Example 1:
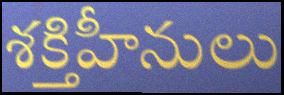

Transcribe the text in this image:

శక్తిహీనులు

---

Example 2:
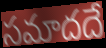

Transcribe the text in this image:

సమాదదే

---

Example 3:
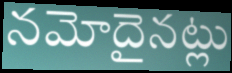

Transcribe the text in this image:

నమోదైనట్లు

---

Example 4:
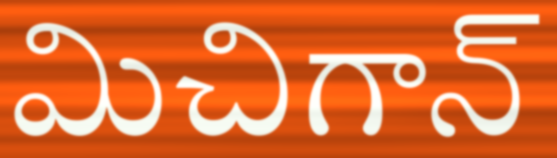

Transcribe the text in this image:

మిచిగాన్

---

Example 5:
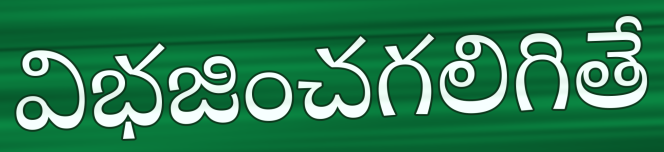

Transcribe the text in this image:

విభజించగలిగితే